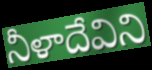
నీళాదేవిని